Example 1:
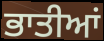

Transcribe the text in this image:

ਭਾਤੀਆਂ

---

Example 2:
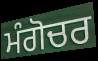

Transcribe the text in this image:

ਮੰਗੋਚਰ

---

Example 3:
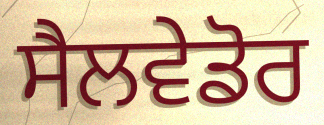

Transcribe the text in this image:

ਸੈਲਵੇਡੋਰ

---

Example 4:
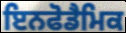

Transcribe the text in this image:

ਇਨਫੋਡੈਮਿਕ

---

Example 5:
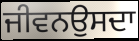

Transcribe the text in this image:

ਜੀਵਨਉਸਦਾ